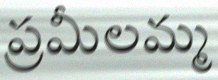
ప్రమీలమ్మ